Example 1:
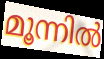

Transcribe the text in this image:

മൂന്നിൽ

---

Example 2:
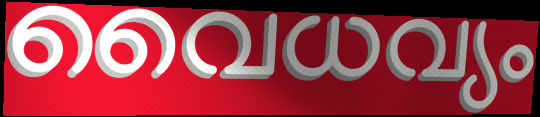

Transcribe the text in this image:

വൈധവ്യം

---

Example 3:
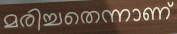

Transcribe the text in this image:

മരിച്ചതെന്നാണ്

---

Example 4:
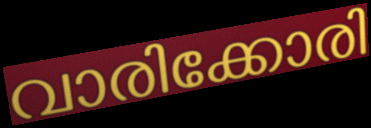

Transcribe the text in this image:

വാരിക്കോരി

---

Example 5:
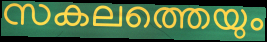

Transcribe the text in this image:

സകലത്തെയും